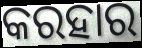
କରହାର